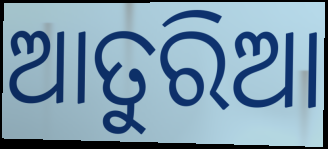
ଆତୁରିଆ